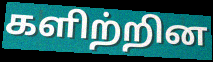
களிற்றின